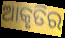
ଆକୃତିର